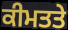
ਕੀਮਤਤੇ